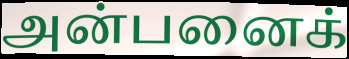
அன்பனைக்